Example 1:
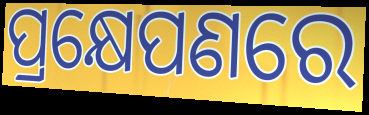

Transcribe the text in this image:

ପ୍ରକ୍ଷେପଣରେ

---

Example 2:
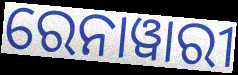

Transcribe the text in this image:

ରେନାୱାରୀ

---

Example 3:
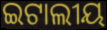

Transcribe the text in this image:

ଇଟାଲୀୟ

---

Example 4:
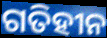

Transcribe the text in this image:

ଗତିହୀନ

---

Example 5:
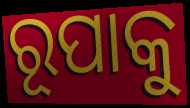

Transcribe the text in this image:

ରୂପାକୁ